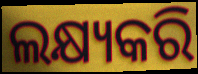
ଲକ୍ଷ୍ୟକରି